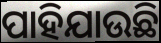
ପାହିଯାଉଛି